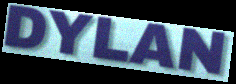
DYLAN